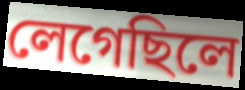
লেগেছিলে